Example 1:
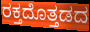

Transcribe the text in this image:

ರಕ್ತದೊತ್ತಡದ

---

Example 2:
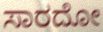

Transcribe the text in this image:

ಸಾರದೋ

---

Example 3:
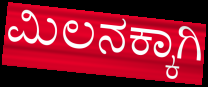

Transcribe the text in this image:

ಮಿಲನಕ್ಕಾಗಿ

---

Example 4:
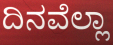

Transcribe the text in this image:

ದಿನವೆಲ್ಲಾ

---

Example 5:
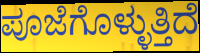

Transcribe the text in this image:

ಪೂಜೆಗೊಳ್ಳುತ್ತಿದೆ